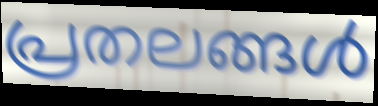
പ്രതലങ്ങൾ